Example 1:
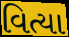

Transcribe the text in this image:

વિત્યા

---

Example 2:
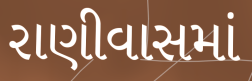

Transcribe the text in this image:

રાણીવાસમાં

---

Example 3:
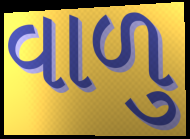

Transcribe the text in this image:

વાળુ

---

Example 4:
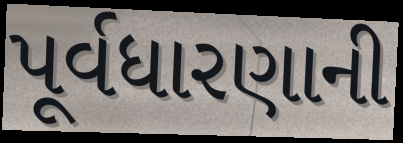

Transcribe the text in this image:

પૂર્વધારણાની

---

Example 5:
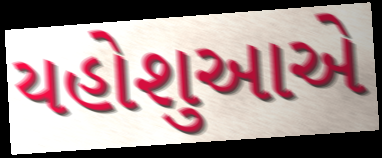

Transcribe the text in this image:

યહોશુઆએ